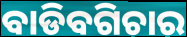
ବାଡିବଗିଚାର